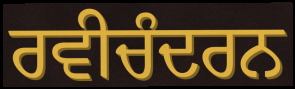
ਰਵੀਚੰਦਰਨ